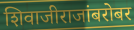
शिवाजीराजांबरोबर